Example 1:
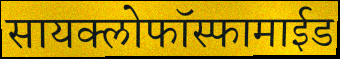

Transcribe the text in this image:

सायक्लोफॉस्फामाईड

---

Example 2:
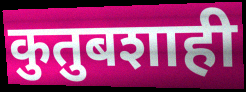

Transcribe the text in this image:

कुतुबशाही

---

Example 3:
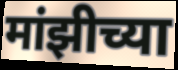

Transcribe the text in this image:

मांझीच्या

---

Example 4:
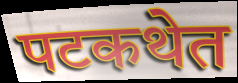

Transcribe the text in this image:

पटकथेत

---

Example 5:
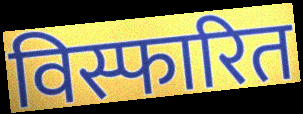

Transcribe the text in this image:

विस्फारित